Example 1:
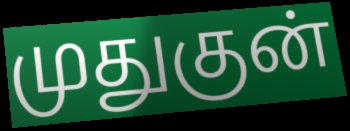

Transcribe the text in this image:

முதுகுன்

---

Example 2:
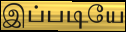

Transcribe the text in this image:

இப்படியே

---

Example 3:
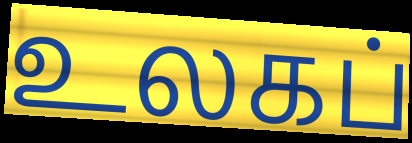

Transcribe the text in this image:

உலகப்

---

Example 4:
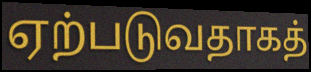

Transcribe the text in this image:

ஏற்படுவதாகத்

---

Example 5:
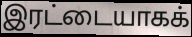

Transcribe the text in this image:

இரட்டையாகக்